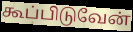
கூப்பிடுவேன்